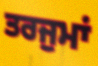
ਤਰਜੁਮਾਂ